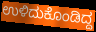
ಉಳಿದುಕೊಂಡಿದ್ದ